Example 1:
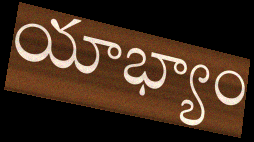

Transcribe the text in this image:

యాభ్యాం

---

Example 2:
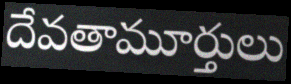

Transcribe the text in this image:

దేవతామూర్తులు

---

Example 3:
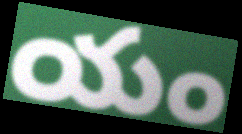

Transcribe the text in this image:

యం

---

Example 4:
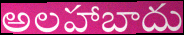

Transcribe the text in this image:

అలహాబాదు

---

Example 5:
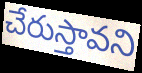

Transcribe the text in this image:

చేరుస్తావని